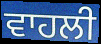
ਵਾਹਲੀ